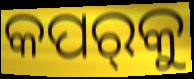
କପର୍‌କୁ